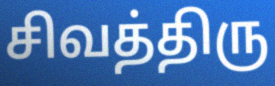
சிவத்திரு